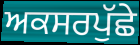
ਅਕਸਰਪੁੱਛੇ